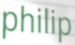
philip